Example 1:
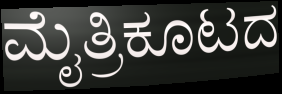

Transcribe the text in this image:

ಮೈತ್ರಿಕೂಟದ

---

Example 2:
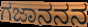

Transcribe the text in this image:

ಗಜಾನನನ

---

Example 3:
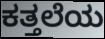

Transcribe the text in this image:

ಕತ್ತಲೆಯ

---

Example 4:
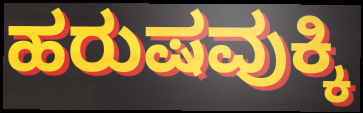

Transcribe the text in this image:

ಹರುಷವುಕ್ಕಿ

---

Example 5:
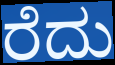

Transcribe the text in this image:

ರೆದು